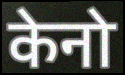
केनो